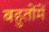
बहुतोंमें